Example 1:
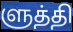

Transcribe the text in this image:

ளுத்தி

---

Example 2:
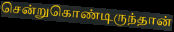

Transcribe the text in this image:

சென்றுகொண்டிருந்தான்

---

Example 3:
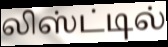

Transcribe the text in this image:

லிஸ்ட்டில்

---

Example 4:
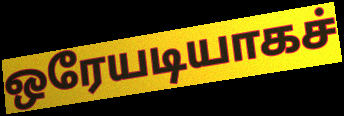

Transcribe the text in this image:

ஒரேயடியாகச்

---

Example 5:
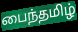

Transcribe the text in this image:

பைந்தமிழ்